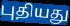
புதியது